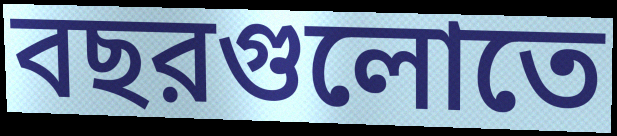
বছরগুলোতে